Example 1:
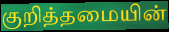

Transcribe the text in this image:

குறித்தமையின்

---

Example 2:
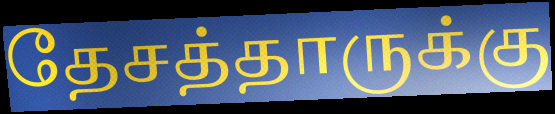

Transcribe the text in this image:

தேசத்தாருக்கு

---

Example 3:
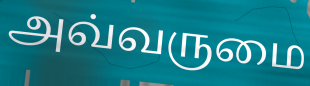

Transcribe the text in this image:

அவ்வருமை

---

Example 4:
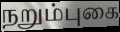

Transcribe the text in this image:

நறும்புகை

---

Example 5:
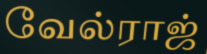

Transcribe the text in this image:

வேல்ராஜ்